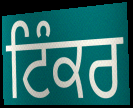
ਟਿੰਕਰ